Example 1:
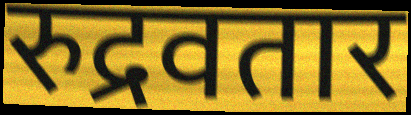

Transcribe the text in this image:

रुद्रवतार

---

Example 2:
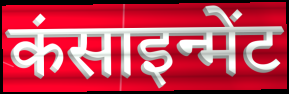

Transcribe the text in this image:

कंसाइन्मेंट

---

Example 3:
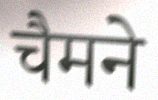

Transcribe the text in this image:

चैमने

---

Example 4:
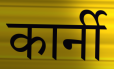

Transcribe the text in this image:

कार्नी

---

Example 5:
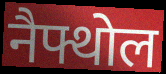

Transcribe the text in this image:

नैफ्थोल